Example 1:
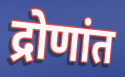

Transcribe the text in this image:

द्रोणांत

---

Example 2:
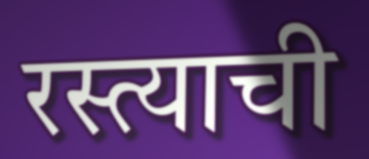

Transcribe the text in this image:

रस्त्याची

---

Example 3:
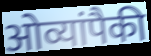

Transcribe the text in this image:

ओव्यांपैकी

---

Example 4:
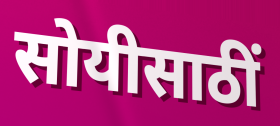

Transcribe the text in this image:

सोयीसाठीं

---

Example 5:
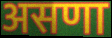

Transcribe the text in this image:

असणा